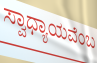
ಸ್ವಾಧ್ಯಾಯವೆಂಬ